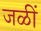
जळीं